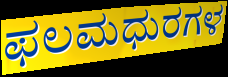
ಫಲಮಧುರಗಳ